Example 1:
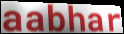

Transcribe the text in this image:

aabhar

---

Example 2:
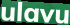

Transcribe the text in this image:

ulavu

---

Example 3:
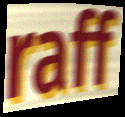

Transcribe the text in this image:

raff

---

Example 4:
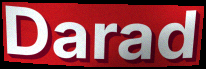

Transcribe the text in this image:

Darad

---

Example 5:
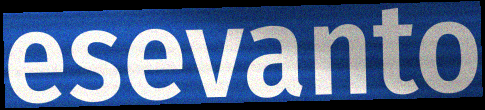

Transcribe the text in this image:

esevanto